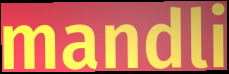
mandli